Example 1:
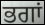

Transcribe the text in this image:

ਭਗਾਂ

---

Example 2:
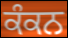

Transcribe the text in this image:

ਕੰਕਨ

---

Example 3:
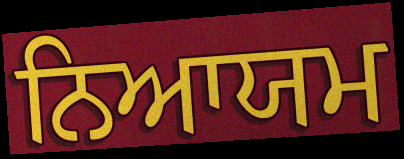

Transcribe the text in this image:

ਨਿਆਯਮ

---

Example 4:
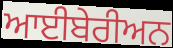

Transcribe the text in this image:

ਆਈਬੇਰੀਅਨ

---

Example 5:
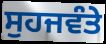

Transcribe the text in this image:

ਸੁਹਜਵੰਤੇ